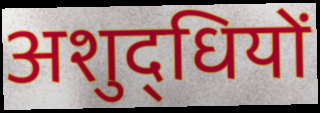
अशुद्धियों